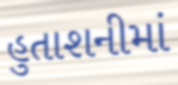
હુતાશનીમાં